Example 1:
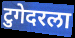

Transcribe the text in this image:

टुगेदरला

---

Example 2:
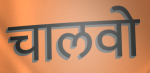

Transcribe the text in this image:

चालवो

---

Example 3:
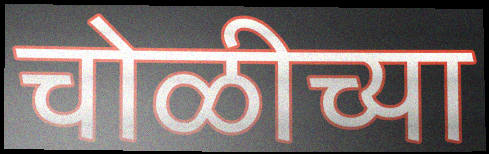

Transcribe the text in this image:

चोळीच्या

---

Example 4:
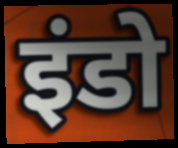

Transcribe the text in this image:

इंडो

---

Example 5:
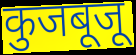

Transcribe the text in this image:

कुजबूजू